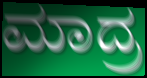
ಮಾದ್ರ